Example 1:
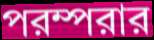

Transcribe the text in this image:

পরম্পরার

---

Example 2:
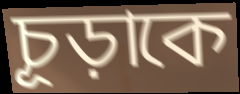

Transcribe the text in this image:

চূড়াকে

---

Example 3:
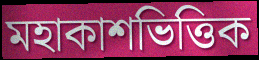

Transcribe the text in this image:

মহাকাশভিত্তিক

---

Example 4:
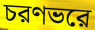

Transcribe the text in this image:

চরণভরে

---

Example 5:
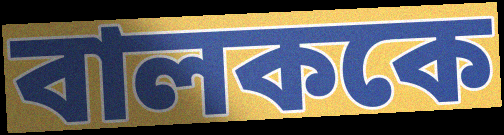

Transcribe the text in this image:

বালককে